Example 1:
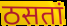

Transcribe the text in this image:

ठसतां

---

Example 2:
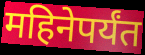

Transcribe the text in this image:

महिनेपर्यंत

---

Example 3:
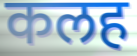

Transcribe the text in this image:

कलह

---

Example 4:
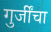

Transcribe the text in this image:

गुर्जींचा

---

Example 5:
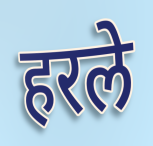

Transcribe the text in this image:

हरले